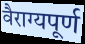
वैराग्यपूर्ण